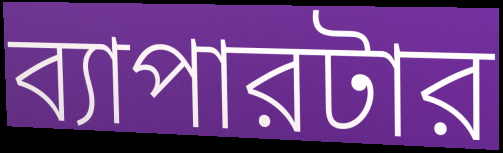
ব্যাপারটার